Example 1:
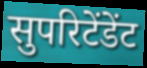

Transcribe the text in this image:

सुपरिटेंडेंट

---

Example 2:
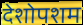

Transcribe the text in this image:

देशोपशम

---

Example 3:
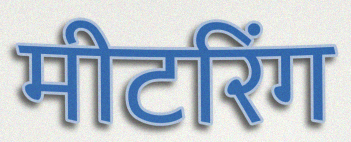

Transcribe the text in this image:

मीटरिंग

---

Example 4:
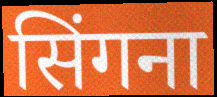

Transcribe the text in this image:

सिंगना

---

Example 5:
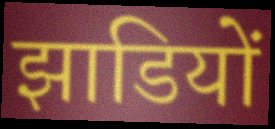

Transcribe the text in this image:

झाडियों